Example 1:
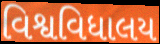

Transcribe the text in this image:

વિશ્વવિધાલય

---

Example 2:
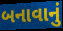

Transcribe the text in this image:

બનાવાનું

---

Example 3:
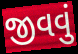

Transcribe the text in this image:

જીવવું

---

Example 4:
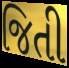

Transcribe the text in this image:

જિતી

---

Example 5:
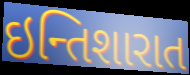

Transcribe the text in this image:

ઇન્તિશારાત